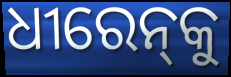
ଧୀରେନ୍‌କୁ